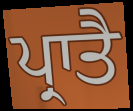
ਪ੍ਰਾਤੈ